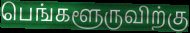
பெங்களூருவிற்கு